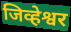
जिव्हेश्वर